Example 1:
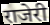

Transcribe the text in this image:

राजेरी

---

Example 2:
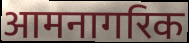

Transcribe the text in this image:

आमनागरिक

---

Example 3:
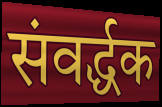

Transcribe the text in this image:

संवर्द्धक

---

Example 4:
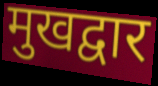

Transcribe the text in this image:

मुखद्वार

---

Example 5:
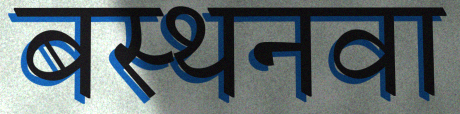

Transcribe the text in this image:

बस्थनवा